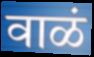
वाळं